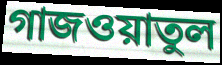
গাজওয়াতুল